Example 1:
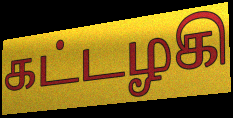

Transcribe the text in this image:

கட்டழகி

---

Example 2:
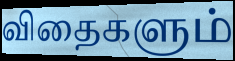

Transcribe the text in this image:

விதைகளும்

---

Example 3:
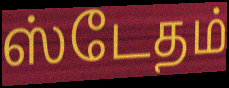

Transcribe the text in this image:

ஸ்டேதம்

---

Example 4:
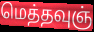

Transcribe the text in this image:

மெத்தவுஞ்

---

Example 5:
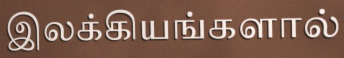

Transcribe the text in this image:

இலக்கியங்களால்